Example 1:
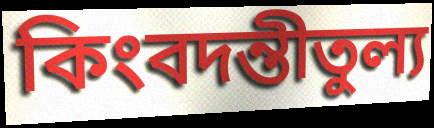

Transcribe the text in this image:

কিংবদন্তীতুল্য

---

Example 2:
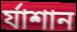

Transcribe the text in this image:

র্যাশান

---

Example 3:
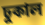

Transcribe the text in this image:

ঢুকাল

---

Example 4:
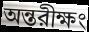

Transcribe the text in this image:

অন্তরীক্ষং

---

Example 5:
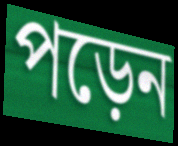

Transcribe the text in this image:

পড়েন